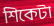
শিকেটা